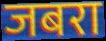
जबरा